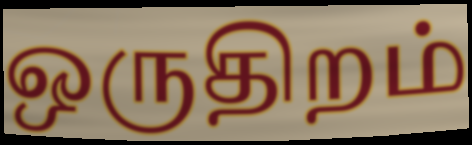
ஒருதிறம்